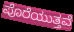
ಪೊರೆಯುತ್ತವೆ